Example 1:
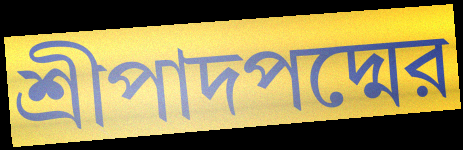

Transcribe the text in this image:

শ্রীপাদপদ্মের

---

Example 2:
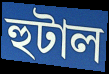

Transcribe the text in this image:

হুটাল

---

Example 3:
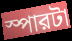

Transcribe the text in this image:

স্পারটা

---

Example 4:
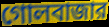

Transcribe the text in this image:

গোলবাজার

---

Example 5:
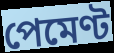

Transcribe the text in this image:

পেমেণ্ট